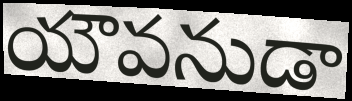
యౌవనుడా